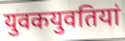
युवकयुवतियां